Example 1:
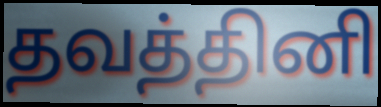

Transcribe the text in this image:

தவத்தினி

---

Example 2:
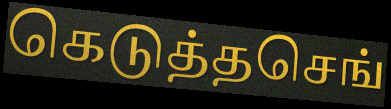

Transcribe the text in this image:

கெடுத்தசெங்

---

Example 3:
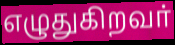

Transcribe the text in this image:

எழுதுகிறவர்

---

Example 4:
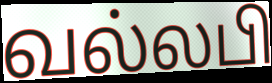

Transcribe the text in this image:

வல்லபி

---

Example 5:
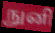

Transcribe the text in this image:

நுனி